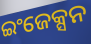
ଇଂଜେକ୍ସନ